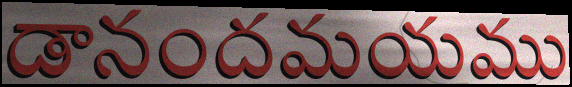
డానందమయము